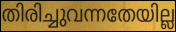
തിരിച്ചുവന്നതേയില്ല